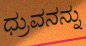
ಧ್ರುವನನ್ನು